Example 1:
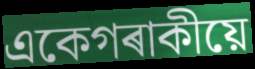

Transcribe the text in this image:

একেগৰাকীয়ে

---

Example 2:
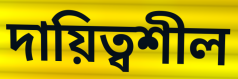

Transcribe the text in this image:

দায়িত্বশীল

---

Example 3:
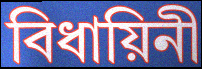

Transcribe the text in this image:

বিধায়িনী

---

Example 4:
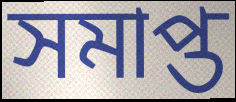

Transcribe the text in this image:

সমাপ্ত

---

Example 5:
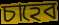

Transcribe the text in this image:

চাহেব